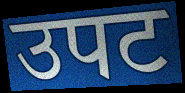
उपट